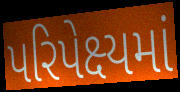
પરિપેક્ષ્યમાં